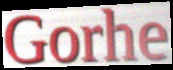
Gorhe